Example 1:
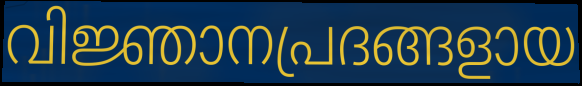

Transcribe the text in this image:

വിജ്ഞാനപ്രദങ്ങളായ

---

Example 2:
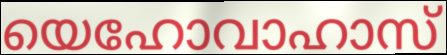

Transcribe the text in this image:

യെഹോവാഹാസ്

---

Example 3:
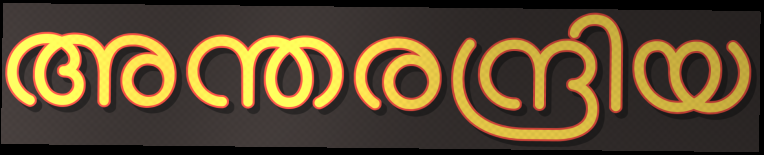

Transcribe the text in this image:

അന്തരന്ദ്രിയ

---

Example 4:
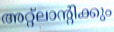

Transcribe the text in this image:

അറ്റ്ലാന്റിക്കും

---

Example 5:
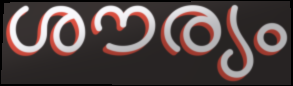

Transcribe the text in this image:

ശൗര്യം